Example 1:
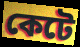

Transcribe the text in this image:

কেটে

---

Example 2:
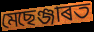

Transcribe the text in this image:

মেছেঞ্জাৰত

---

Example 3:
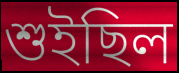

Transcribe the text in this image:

শুইছিল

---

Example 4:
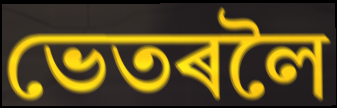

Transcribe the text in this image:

ভেতৰলৈ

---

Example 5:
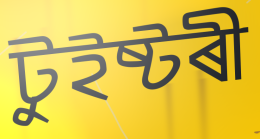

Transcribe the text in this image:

টুইষ্টৰী